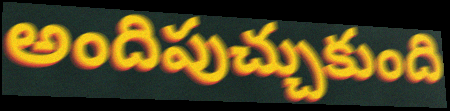
అందిపుచ్చుకుంది